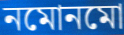
নমোনমো